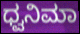
ಧ್ವನಿಮಾ